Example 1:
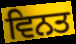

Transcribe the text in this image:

ਵਿਨਤ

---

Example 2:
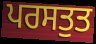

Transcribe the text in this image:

ਪਰਸਤੁਤ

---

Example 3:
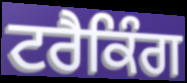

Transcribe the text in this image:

ਟਰੈਕਿੰਗ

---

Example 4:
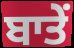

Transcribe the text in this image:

ਬਾਤੇਂ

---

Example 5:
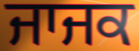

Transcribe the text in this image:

ਜਾਜਕ